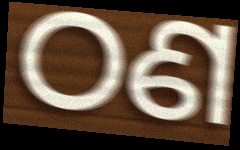
ଠଣ